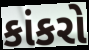
કાંકરો